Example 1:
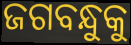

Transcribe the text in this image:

ଜଗବନ୍ଧୁକୁ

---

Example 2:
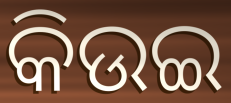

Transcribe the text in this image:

କିଉଇ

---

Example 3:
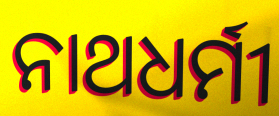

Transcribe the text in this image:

ନାଥଧର୍ମୀ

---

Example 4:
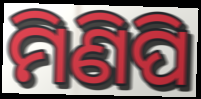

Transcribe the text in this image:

ମିଣିପି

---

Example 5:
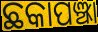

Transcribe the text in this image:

ଛକାପଞ୍ଝା